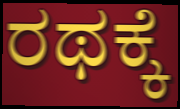
ರಥಕ್ಕೆ